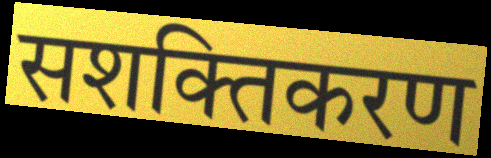
सशक्‍तिकरण